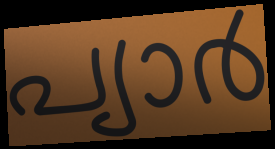
പ്യാർ